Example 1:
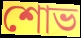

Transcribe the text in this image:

শোভ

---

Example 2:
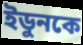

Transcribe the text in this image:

ইডুনকে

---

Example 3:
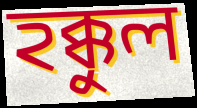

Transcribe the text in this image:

হক্কুল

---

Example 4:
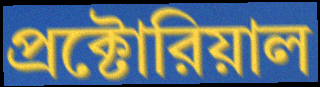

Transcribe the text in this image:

প্রক্টোরিয়াল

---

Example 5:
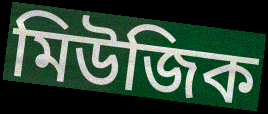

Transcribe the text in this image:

মিউজিক